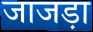
जाजड़ा